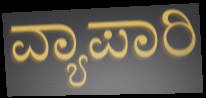
ವ್ಯಾಪಾರಿ